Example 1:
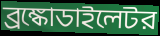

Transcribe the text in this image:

ব্রঙ্কোডাইলেটর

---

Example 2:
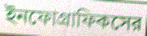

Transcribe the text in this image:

ইনফোগ্রাফিকসের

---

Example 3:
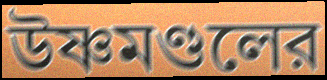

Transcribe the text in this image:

উষ্ণমণ্ডলের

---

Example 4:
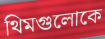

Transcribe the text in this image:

থিমগুলোকে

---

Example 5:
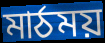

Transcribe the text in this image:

মাঠময়